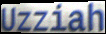
Uzziah